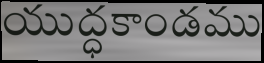
యుద్ధకాండము